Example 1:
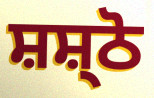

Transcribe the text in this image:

ਸ਼ਸ਼੍ਠੋ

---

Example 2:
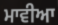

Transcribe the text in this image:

ਮਾਵੀਆ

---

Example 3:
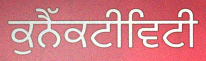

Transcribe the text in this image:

ਕੁਨੈੱਕਟੀਵਿਟੀ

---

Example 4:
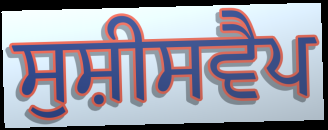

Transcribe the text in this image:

ਸੁਸ਼ੀਸਵੈਪ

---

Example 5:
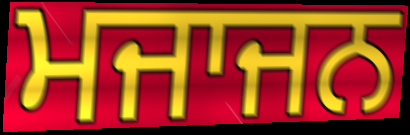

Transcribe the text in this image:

ਮਜਾਜਨ